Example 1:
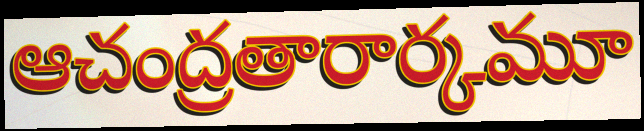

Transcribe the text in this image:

ఆచంద్రతారార్కమూ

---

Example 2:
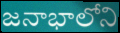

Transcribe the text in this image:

జనాభాలోని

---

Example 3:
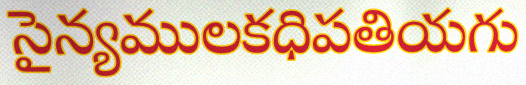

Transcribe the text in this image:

సైన్యములకధిపతియగు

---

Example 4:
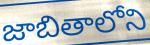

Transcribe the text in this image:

జాబితాలోని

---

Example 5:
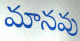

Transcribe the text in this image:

మానవు